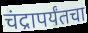
चंद्रापर्यंतचा